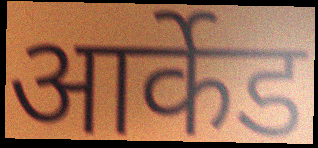
आर्केड